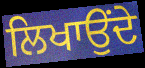
ਲਿਖਾਉਂਦੇ